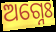
ଅଗ୍ନେଃ